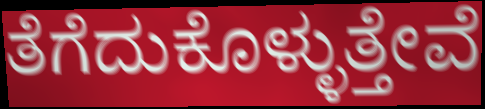
ತೆಗೆದುಕೊಳ್ಳುತ್ತೇವೆ